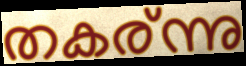
തകര്ന്നു